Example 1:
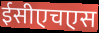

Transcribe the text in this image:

ईसीएचएस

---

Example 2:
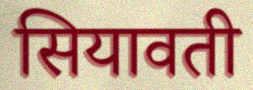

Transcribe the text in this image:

सियावती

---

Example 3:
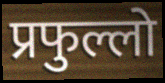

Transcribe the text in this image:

प्रफुल्लो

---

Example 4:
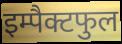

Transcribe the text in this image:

इम्पैक्टफुल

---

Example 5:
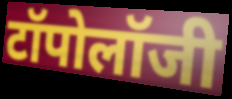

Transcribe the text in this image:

टॉपोलॉजी